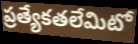
ప్రత్యేకతలేమిటో